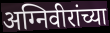
अग्निवीरांच्या